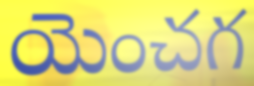
యెంచగ